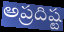
అప్రదిష్ట